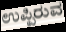
ಉಪ್ಪಿರುವ